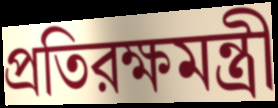
প্রতিরক্ষমন্ত্রী